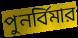
পুনর্বিমার